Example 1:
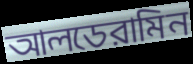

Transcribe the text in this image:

আলডেরামিন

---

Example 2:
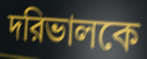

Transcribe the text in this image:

দরিভালকে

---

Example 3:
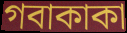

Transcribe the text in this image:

গবাকাকা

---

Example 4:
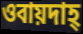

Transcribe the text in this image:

ওবায়দাহ্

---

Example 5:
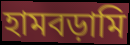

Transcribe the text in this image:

হামবড়ামি